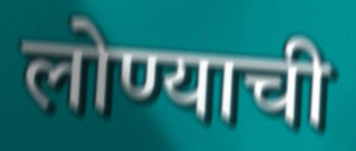
लोण्याची